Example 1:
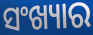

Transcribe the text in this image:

ସଂଖ୍ୟାର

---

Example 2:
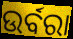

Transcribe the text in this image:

ଉର୍ବରା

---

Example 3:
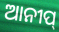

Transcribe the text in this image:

ଆନୀପ୍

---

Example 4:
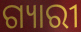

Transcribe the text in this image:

ଗ୍ୟାରୀ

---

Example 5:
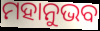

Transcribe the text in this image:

ମହାନୁଭବ